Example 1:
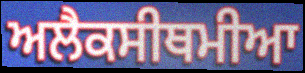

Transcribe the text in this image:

ਅਲੈਕਸੀਥਮੀਆ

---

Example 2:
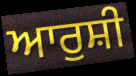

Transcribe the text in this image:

ਆਰੁਸ਼ੀ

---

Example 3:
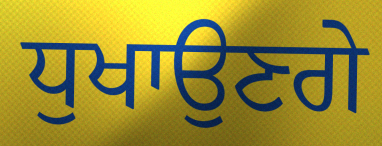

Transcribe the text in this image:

ਧੁਖਾਉਣਗੇ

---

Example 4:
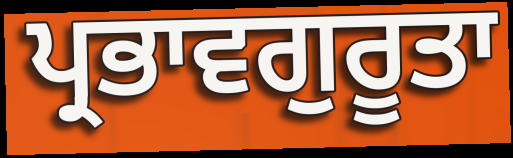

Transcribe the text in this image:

ਪ੍ਰਭਾਵਗੁਰੂਤਾ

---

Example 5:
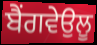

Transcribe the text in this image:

ਬੈਂਗਵੇਉਲੂ